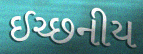
ઈચ્છનીય